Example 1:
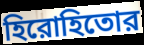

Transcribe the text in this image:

হিরোহিতোর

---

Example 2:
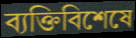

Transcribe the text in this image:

ব্যক্তিবিশেষে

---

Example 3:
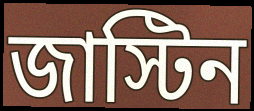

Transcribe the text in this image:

জাস্টিন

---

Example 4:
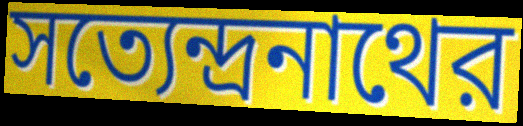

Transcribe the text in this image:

সত্যেন্দ্রনাথের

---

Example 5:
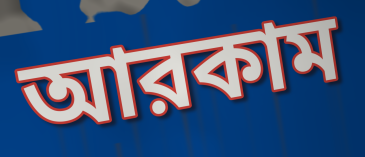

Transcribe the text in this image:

আরকাম